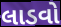
લાડવો